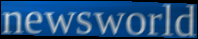
newsworld